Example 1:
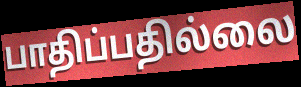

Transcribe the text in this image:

பாதிப்பதில்லை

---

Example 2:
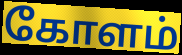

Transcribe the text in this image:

கோளம்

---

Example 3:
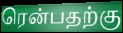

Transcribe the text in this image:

ரென்பதற்கு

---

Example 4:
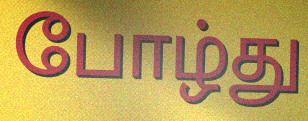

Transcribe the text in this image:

போழ்து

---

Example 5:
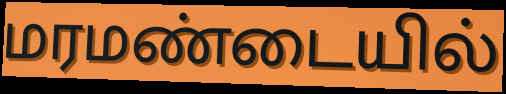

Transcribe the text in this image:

மரமண்டையில்